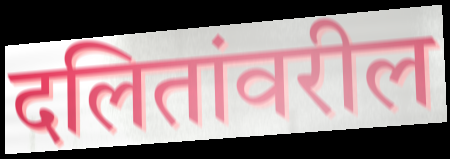
दलितांवरील